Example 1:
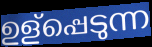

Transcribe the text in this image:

ഉള്പ്പെടുന്ന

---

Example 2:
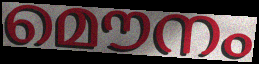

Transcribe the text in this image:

മൌനം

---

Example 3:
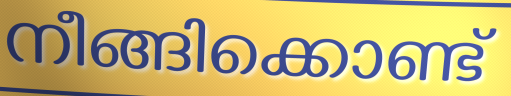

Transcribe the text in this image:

നീങ്ങിക്കൊണ്ട്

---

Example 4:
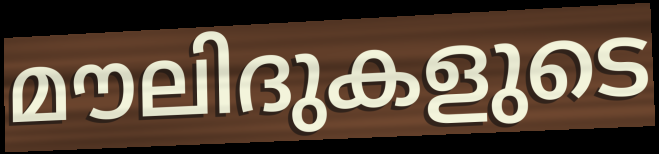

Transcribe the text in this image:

മൗലിദുകളുടെ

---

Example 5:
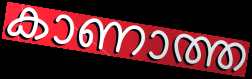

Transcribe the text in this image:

കാണാത്ത